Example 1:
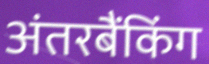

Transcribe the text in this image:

अंतरबैंकिंग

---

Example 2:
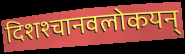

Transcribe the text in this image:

दिशश्चानवलोकयन्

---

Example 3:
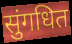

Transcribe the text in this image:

सुंगधित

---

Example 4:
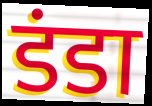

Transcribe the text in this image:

डंडा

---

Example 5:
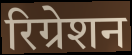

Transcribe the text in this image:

रिग्रेशन